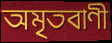
অমৃতবাণী